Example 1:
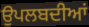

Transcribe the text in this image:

ਉਪਲਬਦੀਆਂ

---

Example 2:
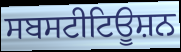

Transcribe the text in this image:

ਸਬਸਟੀਟਿਊਸ਼ਨ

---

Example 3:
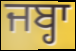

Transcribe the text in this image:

ਜਬ੍ਹਾ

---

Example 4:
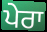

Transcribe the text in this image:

ਪੇਰਾ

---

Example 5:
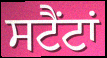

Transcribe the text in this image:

ਸਟੈਂਟਾਂ